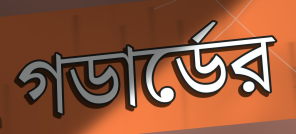
গডার্ডের